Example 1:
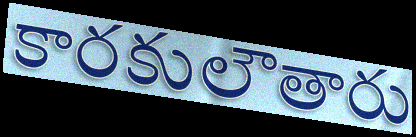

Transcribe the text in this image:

కారకులౌతారు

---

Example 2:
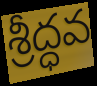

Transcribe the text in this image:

శ్రీద్ధవ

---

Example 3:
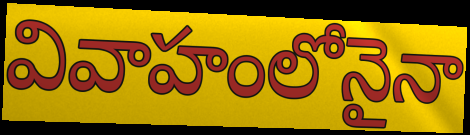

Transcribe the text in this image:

వివాహంలోనైనా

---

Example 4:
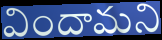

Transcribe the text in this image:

విందామని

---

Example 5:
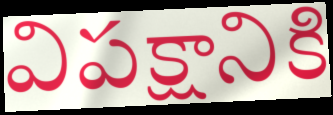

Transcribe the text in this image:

విపక్షానికి